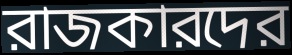
রাজকারদের